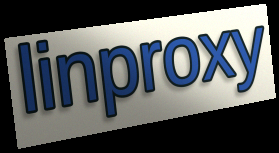
linproxy